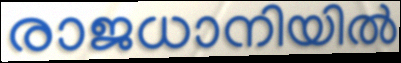
രാജധാനിയിൽ